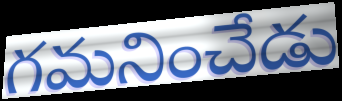
గమనించేడు